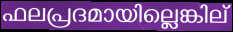
ഫലപ്രദമായില്ലെങ്കില്